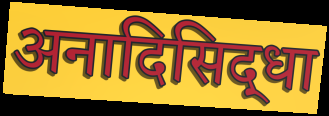
अनादिसिद्धा